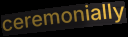
ceremonially